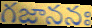
గజాననః